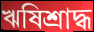
ঋষিশ্রাদ্ধ